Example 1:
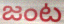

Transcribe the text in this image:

జంట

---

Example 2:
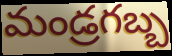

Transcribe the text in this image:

మండ్రగబ్బ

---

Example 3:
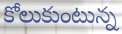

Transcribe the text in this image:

కోలుకుంటున్న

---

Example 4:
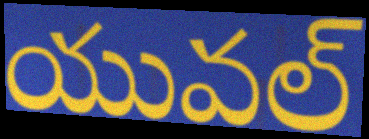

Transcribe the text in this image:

యువల్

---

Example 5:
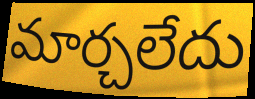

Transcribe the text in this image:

మార్చలేదు